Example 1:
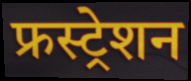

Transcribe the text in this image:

फ्रस्‍ट्रेशन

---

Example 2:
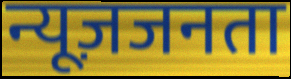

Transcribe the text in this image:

न्यूज़जनता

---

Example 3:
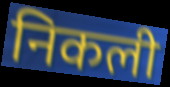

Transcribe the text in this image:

निकली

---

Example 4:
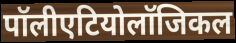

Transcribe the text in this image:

पॉलीएटियोलॉजिकल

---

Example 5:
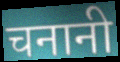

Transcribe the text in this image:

चनानी